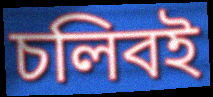
চলিবই